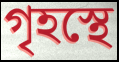
গৃহস্থে